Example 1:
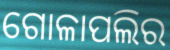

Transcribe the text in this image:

ଗୋଳାପଲିର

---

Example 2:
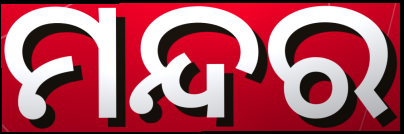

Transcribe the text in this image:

ମନ୍ଦର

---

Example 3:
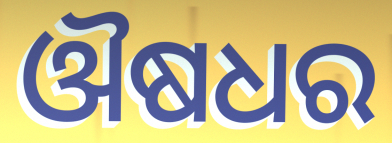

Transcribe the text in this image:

ଔଷଧର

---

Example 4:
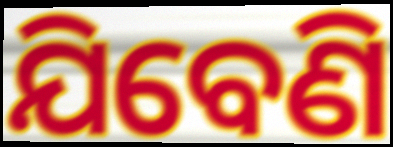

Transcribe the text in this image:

ଯିବେଣି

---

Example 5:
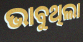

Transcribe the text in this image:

ଭାବୁଥିଲା